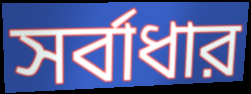
সর্বাধার